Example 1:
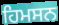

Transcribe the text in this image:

ਹਿਮਸਨ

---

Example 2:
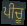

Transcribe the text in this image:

ਪੀਚੂ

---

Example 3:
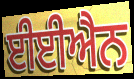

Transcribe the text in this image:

ਈਈਐਨ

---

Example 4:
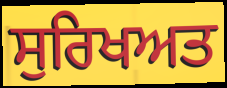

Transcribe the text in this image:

ਸੁਰਿਖਅਤ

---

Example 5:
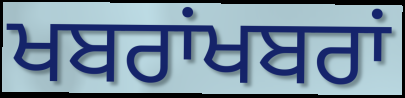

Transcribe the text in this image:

ਖਬਰਾਂਖਬਰਾਂ